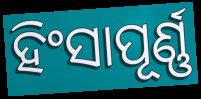
ହିଂସାପୂର୍ଣ୍ଣ